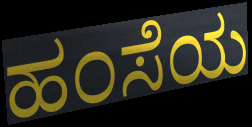
ಹಂಸೆಯ